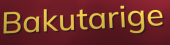
Bakutarige